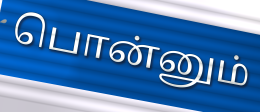
பொன்னும்